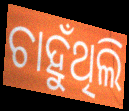
ଚାହୁଁଥିଲି